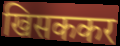
खिसककर